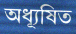
অধ্যূষিত